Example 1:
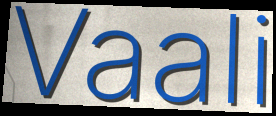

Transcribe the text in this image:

Vaali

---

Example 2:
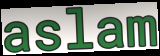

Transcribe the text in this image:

aslam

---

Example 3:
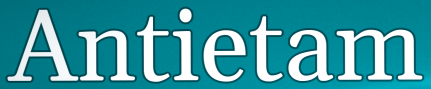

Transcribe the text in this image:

Antietam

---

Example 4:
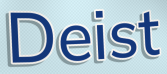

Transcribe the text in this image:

Deist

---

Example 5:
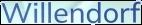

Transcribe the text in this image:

Willendorf